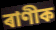
ৰাণীক